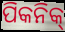
ପିକନିକ୍